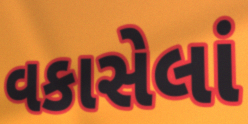
વકાસેલાં